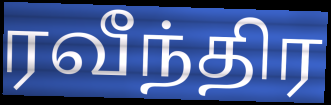
ரவீந்திர